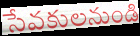
సేవకులనుండి